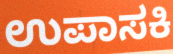
ಉಪಾಸಕಿ